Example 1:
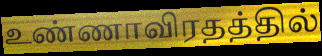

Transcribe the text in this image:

உண்ணாவிரதத்தில்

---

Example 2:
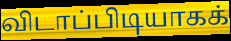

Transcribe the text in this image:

விடாப்பிடியாகக்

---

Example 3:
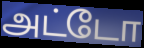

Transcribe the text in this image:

அட்டோ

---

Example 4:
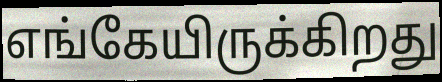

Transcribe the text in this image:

எங்கேயிருக்கிறது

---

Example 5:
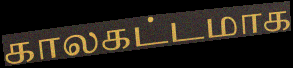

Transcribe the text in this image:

காலகட்டமாக